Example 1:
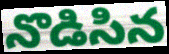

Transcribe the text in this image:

నొడిసిన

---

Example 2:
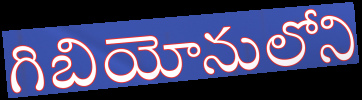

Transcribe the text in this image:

గిబియోనులోని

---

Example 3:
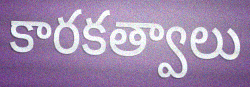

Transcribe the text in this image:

కారకత్వాలు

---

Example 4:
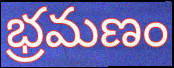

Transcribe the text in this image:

భ్రమణం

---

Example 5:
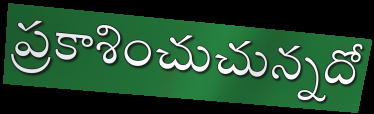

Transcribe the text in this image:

ప్రకాశించుచున్నదో